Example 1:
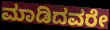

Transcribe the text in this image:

ಮಾಡಿದವರೇ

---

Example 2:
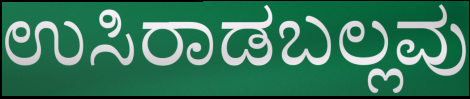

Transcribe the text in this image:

ಉಸಿರಾಡಬಲ್ಲವು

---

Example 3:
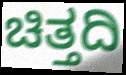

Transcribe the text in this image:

ಚಿತ್ತದಿ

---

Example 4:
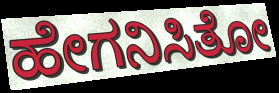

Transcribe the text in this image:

ಹೇಗನಿಸಿತೋ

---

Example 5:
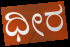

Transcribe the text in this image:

ಧೀರ